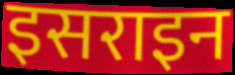
इसराइन